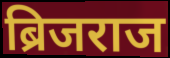
ब्रिजराज